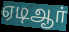
ஏடிஆர்